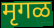
मृगळ